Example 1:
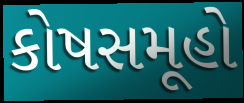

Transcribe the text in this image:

કોષસમૂહો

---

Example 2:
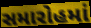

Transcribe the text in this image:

સમારોહમાં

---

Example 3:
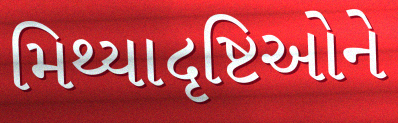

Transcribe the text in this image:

મિથ્યાદૃષ્ટિઓને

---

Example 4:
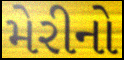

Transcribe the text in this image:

મેરીનો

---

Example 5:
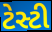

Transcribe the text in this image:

ટેસ્ટી